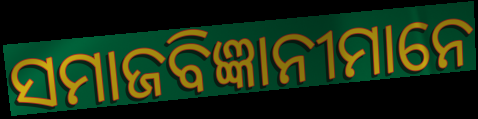
ସମାଜବିଜ୍ଞାନୀମାନେ